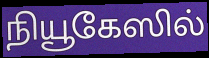
நியூகேஸில்